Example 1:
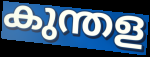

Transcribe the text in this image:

കുന്തള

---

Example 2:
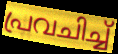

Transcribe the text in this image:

പ്രവചിച്ച്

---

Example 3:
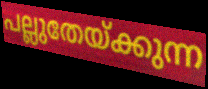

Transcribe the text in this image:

പല്ലുതേയ്ക്കുന്ന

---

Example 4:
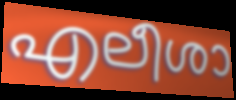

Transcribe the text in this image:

എലീശാ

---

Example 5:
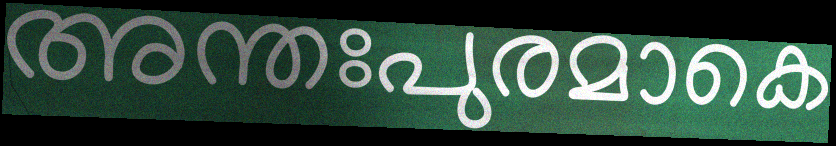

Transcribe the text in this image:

അന്തഃപുരമാകെ